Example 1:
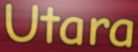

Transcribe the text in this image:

Utara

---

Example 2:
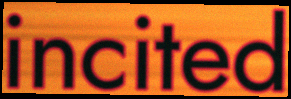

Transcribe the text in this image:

incited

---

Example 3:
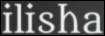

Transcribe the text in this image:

ilisha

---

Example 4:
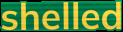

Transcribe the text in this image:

shelled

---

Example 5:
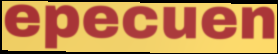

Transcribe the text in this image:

epecuen